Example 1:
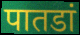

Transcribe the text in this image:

पातडां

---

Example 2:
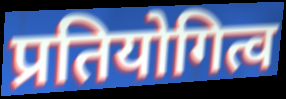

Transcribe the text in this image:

प्रतियोगित्व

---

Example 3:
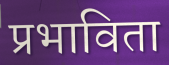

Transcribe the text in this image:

प्रभाविता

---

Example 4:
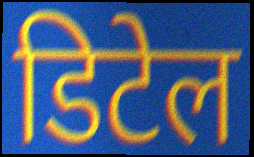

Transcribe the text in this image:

डिटेल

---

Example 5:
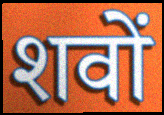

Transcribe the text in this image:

शवों